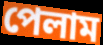
পেলাম